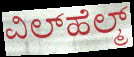
ವಿಲ್‌ಹೆಲ್ಮ್